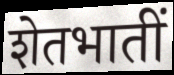
शेतभातीं